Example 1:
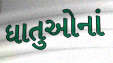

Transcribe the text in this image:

ધાતુઓનાં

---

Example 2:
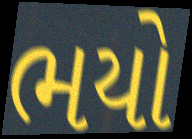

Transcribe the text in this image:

ભયો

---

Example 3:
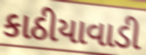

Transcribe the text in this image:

કાઠીયાવાડી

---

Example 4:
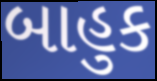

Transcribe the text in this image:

બાહુક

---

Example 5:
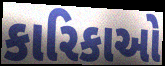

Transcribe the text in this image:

કારિકાઓ